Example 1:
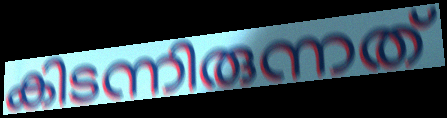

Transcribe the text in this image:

കിടന്നിരുന്നത്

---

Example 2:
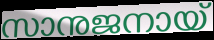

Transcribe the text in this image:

സാനുജനായ്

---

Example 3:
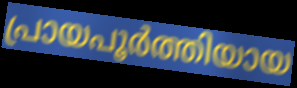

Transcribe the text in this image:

പ്രായപൂർത്തിയായ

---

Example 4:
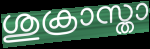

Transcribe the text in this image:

ശുക്രാസ്താ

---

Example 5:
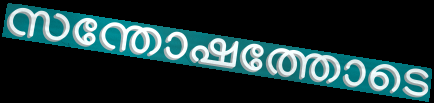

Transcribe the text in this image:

സന്തോഷത്തോടെ